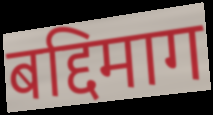
बद्दिमाग